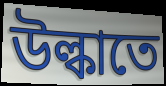
উল্কাতে